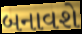
બનાવશે